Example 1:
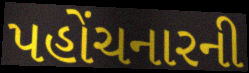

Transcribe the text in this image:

પહોંચનારની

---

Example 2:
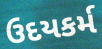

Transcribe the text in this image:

ઉદયકર્મ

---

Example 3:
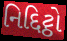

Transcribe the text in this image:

નિદ્દિટ્ઠો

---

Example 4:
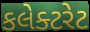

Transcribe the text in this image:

કલેક્ટરેટ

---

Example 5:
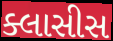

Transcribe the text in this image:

ક્લાસીસ